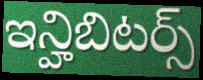
ఇన్హిబిటర్స్